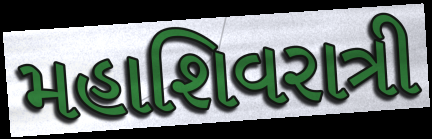
મહાશિવરાત્રી